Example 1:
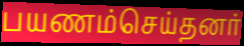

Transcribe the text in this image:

பயணம்செய்தனர்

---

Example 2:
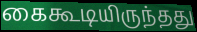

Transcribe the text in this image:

கைகூடியிருந்தது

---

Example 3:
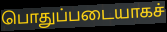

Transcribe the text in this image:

பொதுப்படையாகச்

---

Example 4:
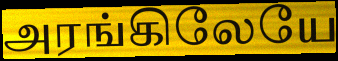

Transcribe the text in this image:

அரங்கிலேயே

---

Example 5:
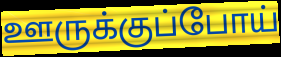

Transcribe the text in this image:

ஊருக்குப்போய்